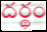
దర్థం